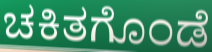
ಚಕಿತಗೊಂಡೆ